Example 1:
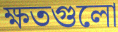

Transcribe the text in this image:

ক্ষতগুলো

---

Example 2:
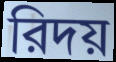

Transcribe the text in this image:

রিদয়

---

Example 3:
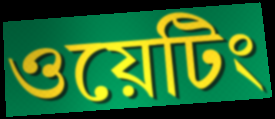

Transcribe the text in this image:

ওয়েটিং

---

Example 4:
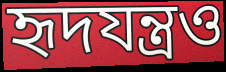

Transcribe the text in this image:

হৃদযন্ত্রও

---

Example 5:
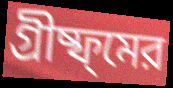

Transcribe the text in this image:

গ্রীষ্ফ্মের